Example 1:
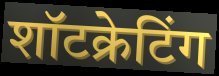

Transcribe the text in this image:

शॉटक्रेटिंग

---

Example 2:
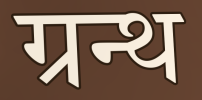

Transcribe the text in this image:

ग्रन्थ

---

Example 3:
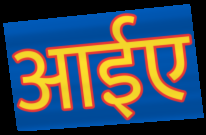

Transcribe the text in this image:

आईए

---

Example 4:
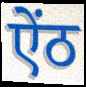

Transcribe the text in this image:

ऐंठ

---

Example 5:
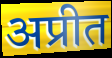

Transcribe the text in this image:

अप्रीत